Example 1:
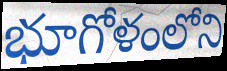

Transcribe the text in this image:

భూగోళంలోని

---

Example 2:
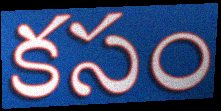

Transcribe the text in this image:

కసం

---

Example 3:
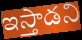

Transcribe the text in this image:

ఇస్తాడని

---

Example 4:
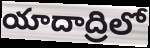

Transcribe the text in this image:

యాదాద్రిలో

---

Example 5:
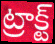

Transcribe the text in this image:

ట్రాక్ట్